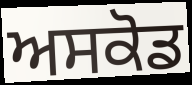
ਅਸਕੋਡ